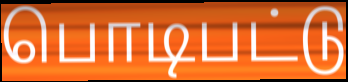
பொடிபட்டு